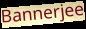
Bannerjee